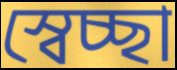
স্বেচ্ছা